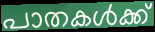
പാതകൾക്ക്